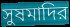
সুষমাদির